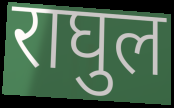
राघुल